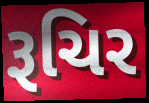
રૂચિર